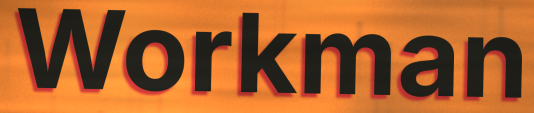
Workman